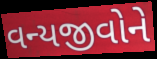
વન્યજીવોને